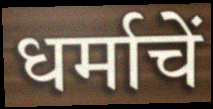
धर्माचें